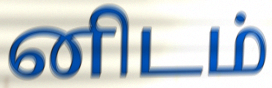
னிடம்